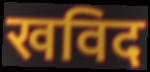
खविद